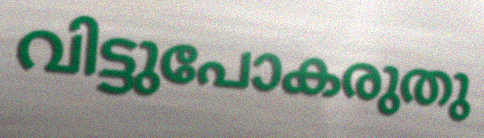
വിട്ടുപോകരുതു